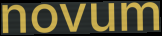
novum